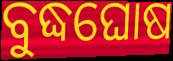
ବୁଦ୍ଧଘୋଷ